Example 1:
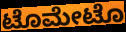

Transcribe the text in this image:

ಟೊಮೇಟೊ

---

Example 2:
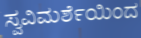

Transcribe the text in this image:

ಸ್ವವಿಮರ್ಶೆಯಿಂದ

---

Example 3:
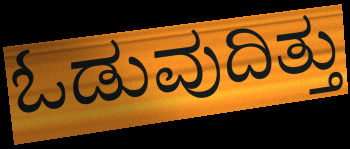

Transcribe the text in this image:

ಓಡುವುದಿತ್ತು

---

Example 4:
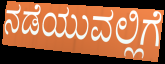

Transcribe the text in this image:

ನಡೆಯುವಲ್ಲಿಗೆ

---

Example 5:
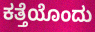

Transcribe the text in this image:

ಕತ್ತೆಯೊಂದು